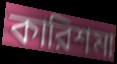
কারিশমা